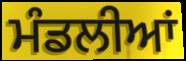
ਮੰਡਲੀਆਂ